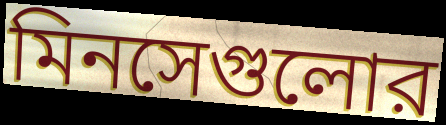
মিনসেগুলোর